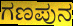
ಗಣಪುನ